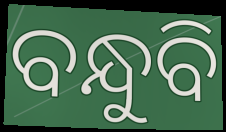
ବନ୍ଧୁବି